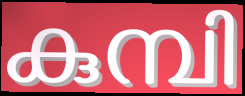
കുമ്പി